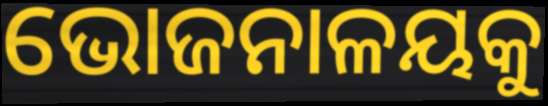
ଭୋଜନାଳୟକୁ